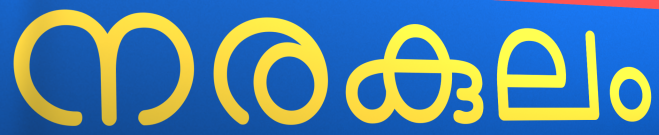
നരകുലം